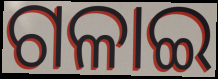
ଗଳାଇ